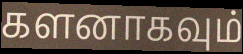
களனாகவும்